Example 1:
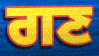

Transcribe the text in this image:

ਗਣ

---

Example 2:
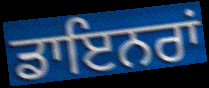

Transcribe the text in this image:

ਡਾਇਨਰਾਂ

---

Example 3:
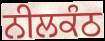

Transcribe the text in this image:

ਨੀਲਕੰਠ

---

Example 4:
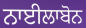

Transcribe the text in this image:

ਨਾਈਲਾਬੋਨ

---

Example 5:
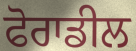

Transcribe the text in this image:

ਫੋਰਾਡੀਲ